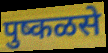
पुष्कळसे